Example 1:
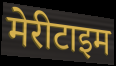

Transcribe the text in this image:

मेरीटाइम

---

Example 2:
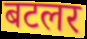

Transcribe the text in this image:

बटलर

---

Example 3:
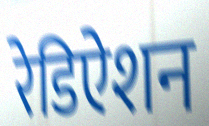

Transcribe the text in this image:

रेडिऐशन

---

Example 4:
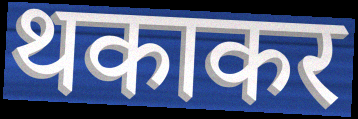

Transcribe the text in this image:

थकाकर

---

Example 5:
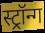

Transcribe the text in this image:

स्ट्रॉन्ग